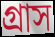
গ্রাস